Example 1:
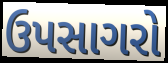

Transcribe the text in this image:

ઉપસાગરો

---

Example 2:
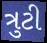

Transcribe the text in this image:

ત્રુટી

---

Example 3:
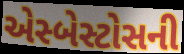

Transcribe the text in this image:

એસ્બેસ્ટોસની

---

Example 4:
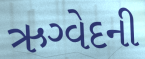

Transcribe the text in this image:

ઋગ્વેદની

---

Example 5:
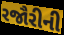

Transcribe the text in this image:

રજૌરીની